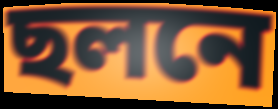
ছলনে